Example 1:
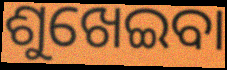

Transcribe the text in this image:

ଶୁଖେଇବା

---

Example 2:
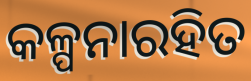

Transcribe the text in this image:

କଳ୍ପନାରହିତ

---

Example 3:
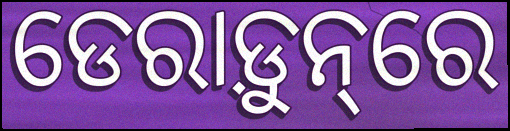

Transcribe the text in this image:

ଡେରାଡ଼ୁନ୍‌ରେ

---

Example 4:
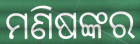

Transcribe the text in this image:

ମଣିଷଙ୍କର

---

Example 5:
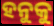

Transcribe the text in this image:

ହନୁକୁ